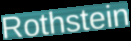
Rothstein